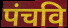
पंचवि